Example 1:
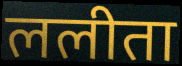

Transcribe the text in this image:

ललीता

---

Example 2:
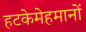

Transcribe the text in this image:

हटकेमेहमानों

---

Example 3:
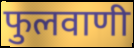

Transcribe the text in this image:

फुलवाणी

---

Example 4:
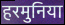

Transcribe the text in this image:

हरमुनिया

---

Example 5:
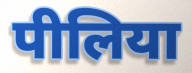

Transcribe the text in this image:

पीलिया